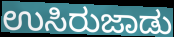
ಉಸಿರುಜಾಡು